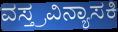
ವಸ್ತ್ರವಿನ್ಯಾಸಕಿ